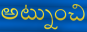
అట్నుంచి